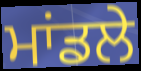
ਮਾਂਡਲੇ